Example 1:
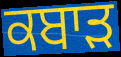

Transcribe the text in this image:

ਕਬਾੜ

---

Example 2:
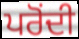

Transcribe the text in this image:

ਪਰੋਂਦੀ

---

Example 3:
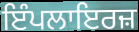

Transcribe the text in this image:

ਇੰਪਲਾਇਰਜ਼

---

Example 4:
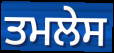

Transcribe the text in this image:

ਤਮਲੇਸ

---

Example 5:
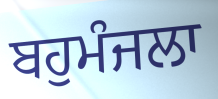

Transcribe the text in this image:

ਬਹੁਮੰਜਲਾ